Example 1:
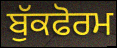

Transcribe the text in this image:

ਬੁੱਕਫੋਰਮ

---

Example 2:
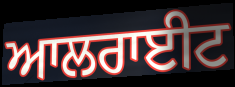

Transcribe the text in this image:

ਆਲਰਾਈਟ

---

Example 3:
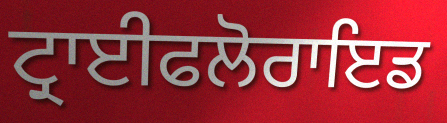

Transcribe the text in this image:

ਟ੍ਰਾਈਫਲੋਰਾਇਡ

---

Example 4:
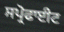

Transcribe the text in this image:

ਸਪ੍ਰੋਫਾਈਟ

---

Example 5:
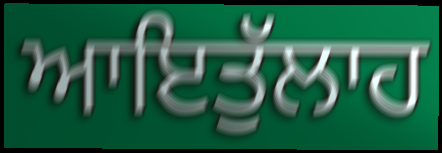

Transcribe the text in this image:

ਆਇਤੁੱਲਾਹ